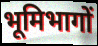
भूमिभागों